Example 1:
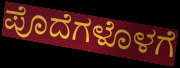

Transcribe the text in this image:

ಪೊದೆಗಳೊಳಗೆ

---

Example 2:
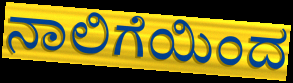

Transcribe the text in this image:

ನಾಲಿಗೆಯಿಂದ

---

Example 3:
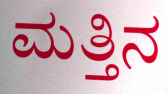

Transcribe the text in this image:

ಮತ್ತಿನ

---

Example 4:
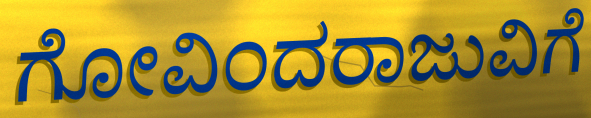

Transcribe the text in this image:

ಗೋವಿಂದರಾಜುವಿಗೆ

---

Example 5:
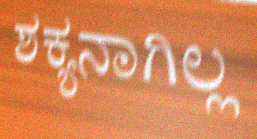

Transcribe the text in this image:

ಶಕ್ಯನಾಗಿಲ್ಲ